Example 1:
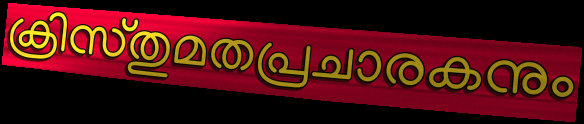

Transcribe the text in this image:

ക്രിസ്തുമതപ്രചാരകനും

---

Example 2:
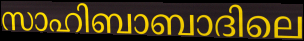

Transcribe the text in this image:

സാഹിബാബാദിലെ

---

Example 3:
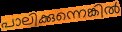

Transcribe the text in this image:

പാലിക്കുന്നെങ്കിൽ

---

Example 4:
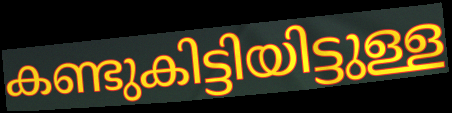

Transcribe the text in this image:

കണ്ടുകിട്ടിയിട്ടുള്ള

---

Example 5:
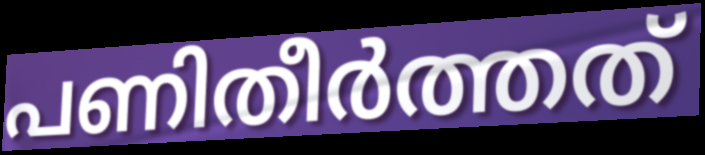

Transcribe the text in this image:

പണിതീർത്തത്